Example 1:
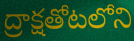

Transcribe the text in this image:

ద్రాక్షతోటలోని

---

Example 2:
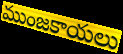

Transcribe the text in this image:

ముంజకాయలు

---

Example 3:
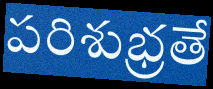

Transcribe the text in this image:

పరిశుభ్రతే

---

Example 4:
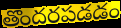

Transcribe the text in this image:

తొందరపడడం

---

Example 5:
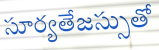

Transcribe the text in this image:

సూర్యతేజస్సుతో